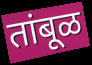
तांबूळ